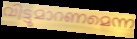
വിട്ടുമാറണമെന്ന